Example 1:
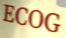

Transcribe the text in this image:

ECOG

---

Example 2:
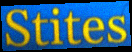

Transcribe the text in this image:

Stites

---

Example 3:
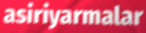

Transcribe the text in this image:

asiriyarmalar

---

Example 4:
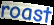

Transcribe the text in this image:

roast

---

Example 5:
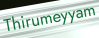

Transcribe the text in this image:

Thirumeyyam